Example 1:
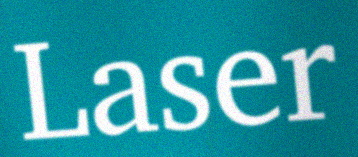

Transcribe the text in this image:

Laser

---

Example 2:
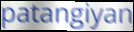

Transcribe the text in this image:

patangiyan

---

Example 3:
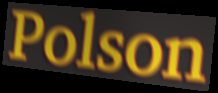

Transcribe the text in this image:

Polson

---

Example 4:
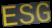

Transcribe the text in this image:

ESG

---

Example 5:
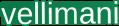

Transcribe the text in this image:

vellimani